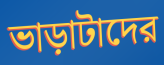
ভাড়াটাদের